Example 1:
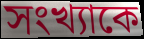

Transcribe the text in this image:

সংখ্যাকে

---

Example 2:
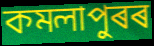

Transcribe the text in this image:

কমলাপুৰৰ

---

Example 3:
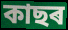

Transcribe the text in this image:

কাছৰ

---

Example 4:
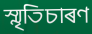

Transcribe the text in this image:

স্মৃতিচাৰণ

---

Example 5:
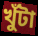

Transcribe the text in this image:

খুঁটা